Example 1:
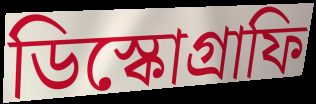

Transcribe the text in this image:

ডিস্কোগ্রাফি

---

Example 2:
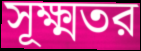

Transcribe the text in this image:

সূক্ষ্মতর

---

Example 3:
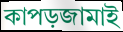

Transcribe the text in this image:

কাপড়জামাই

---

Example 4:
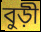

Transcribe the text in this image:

বুড়ী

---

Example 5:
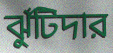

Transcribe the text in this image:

ঝুঁটিদার